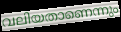
വലിയതാണെന്നും